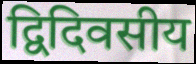
द्विदिवसीय